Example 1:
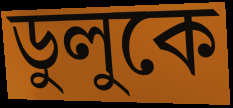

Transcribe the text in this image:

ডুলুকে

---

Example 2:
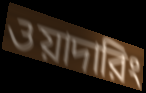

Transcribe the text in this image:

ওয়াদারিং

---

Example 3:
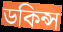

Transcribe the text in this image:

ডকিন্স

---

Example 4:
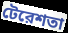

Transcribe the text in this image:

টেরেশতা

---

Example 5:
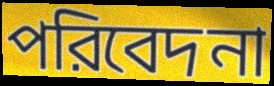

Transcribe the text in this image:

পরিবেদনা